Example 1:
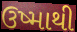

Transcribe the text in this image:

ઉષ્માથી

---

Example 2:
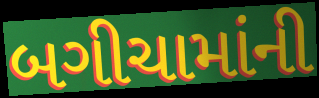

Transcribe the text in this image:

બગીચામાંની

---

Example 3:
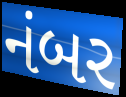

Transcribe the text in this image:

નંબર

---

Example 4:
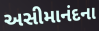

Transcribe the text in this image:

અસીમાનંદના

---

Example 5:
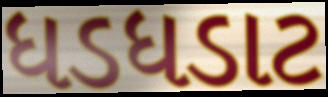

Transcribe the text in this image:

ધડધડાટ